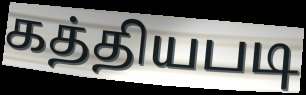
கத்தியபடி